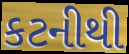
કટનીથી